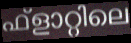
ഫ്ളാറ്റിലെ